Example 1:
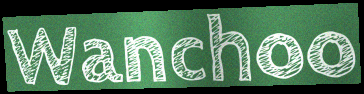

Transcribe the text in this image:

Wanchoo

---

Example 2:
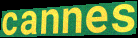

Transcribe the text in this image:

cannes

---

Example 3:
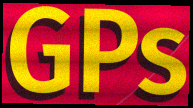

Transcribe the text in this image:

GPs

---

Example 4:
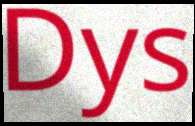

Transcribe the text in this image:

Dys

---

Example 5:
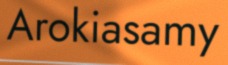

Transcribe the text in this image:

Arokiasamy